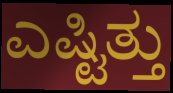
ಎಷ್ಟಿತ್ತು